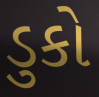
ડુકો